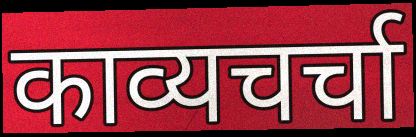
काव्यचर्चा